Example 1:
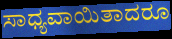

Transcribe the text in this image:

ಸಾಧ್ಯವಾಯಿತಾದರೂ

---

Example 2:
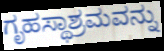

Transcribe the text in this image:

ಗೃಹಸ್ಥಾಶ್ರಮವನ್ನು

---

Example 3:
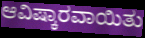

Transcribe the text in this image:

ಆವಿಷ್ಕಾರವಾಯಿತು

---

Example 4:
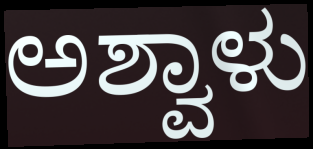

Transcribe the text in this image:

ಅಶ್ವಾಳು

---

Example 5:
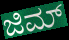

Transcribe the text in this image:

ಜಿಮ್